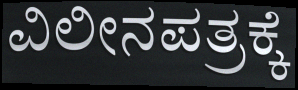
ವಿಲೀನಪತ್ರಕ್ಕೆ